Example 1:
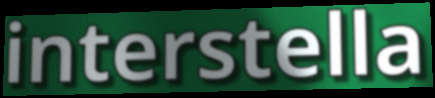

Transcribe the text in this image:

interstella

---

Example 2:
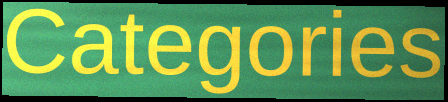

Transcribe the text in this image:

Categories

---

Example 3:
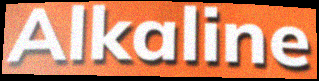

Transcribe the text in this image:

Alkaline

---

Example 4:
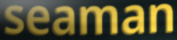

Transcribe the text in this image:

seaman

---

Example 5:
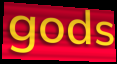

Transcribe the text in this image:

gods